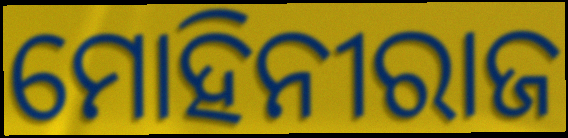
ମୋହିନୀରାଜ